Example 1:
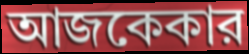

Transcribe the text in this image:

আজকেকার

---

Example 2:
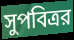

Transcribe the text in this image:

সুপবিত্রর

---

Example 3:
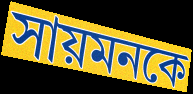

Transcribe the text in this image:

সায়মনকে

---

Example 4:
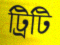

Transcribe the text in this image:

ট্রিটি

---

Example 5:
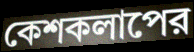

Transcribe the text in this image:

কেশকলাপের